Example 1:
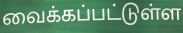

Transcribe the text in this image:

வைக்கப்பட்டுள்ள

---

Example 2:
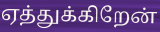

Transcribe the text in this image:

ஏத்துக்கிறேன்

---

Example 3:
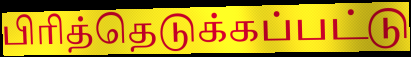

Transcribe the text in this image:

பிரித்தெடுக்கப்பட்டு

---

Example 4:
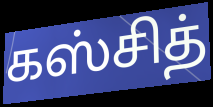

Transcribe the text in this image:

கஸ்சித்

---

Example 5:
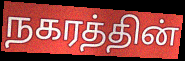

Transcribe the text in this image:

நகரத்தின்